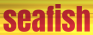
seafish